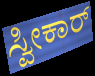
ಸ್ವೀಕಾರ್